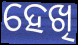
ହେଖି